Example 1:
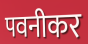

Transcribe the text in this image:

पवनीकर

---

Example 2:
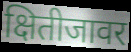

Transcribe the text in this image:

क्षितीजावर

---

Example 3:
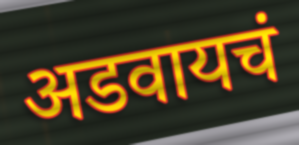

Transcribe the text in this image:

अडवायचं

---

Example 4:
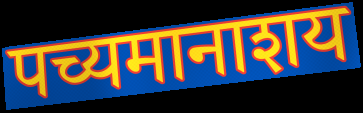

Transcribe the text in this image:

पच्यमानाशय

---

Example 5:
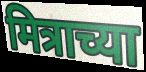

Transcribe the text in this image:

मित्राच्या